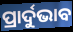
ପ୍ରାର୍ଦୁଭାବ